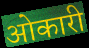
ओकारी